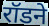
रॉडने